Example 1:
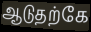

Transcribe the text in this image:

ஆடுதற்கே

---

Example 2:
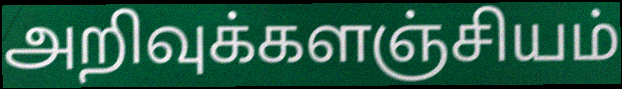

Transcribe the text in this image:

அறிவுக்களஞ்சியம்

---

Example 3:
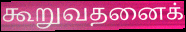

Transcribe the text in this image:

கூறுவதனைக்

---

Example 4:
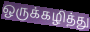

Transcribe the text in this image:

ஒருக்கழித்து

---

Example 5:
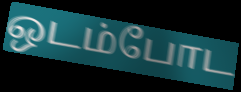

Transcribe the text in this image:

ஒடம்போட